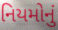
નિયમોનું